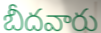
బీదవారు